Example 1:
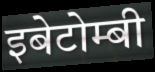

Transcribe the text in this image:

इबेटोम्बी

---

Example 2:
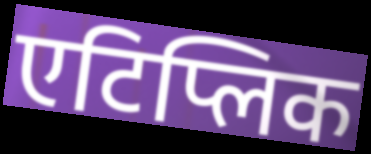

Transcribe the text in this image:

एटिप्लिक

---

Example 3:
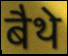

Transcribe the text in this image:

बैथे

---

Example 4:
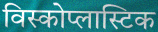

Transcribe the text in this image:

विस्कोप्लास्टिक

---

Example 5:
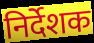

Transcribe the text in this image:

निर्देशक